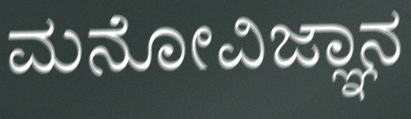
ಮನೋವಿಜ್ಞಾನ